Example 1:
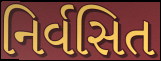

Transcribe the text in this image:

નિર્વસિત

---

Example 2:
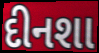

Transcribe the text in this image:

દીનશા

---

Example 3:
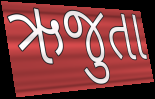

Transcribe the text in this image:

ઋજુતા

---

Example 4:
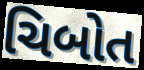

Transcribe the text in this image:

ચિબોત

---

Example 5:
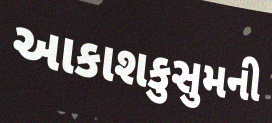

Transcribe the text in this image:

આકાશકુસુમની